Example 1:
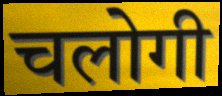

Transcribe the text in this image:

चलोगी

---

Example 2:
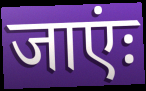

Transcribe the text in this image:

जाएंः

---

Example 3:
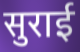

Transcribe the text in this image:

सुराई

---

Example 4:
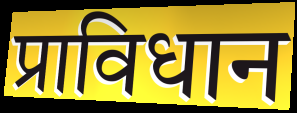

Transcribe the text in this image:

प्राविधान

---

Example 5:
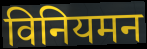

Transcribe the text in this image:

विनियमन